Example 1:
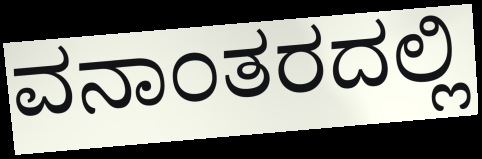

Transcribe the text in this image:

ವನಾಂತರದಲ್ಲಿ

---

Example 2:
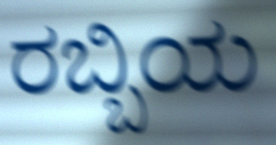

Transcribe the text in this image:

ರಬ್ಬಿಯ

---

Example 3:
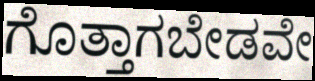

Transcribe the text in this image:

ಗೊತ್ತಾಗಬೇಡವೇ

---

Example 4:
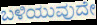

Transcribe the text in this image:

ಬಳಿಯುವುದೇ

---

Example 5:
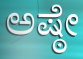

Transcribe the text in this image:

ಅಷ್ಠೇ